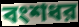
বংশধর